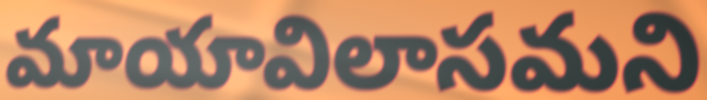
మాయావిలాసమని